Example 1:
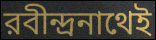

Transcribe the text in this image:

রবীন্দ্রনাথেই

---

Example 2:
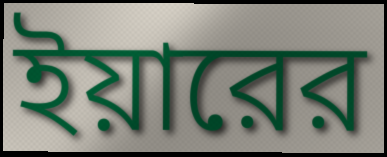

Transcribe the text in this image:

ইয়ারের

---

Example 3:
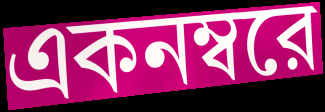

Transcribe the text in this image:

একনম্বরে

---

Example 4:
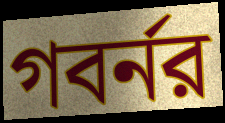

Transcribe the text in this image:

গবর্নর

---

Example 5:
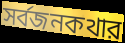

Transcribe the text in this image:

সর্বজনকথার